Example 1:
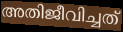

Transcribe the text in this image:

അതിജീവിച്ചത്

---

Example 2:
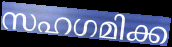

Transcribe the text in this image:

സഹഗമിക്ക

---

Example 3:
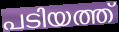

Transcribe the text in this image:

പടിയത്ത്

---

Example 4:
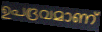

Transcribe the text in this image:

ഉപദ്രവമാണ്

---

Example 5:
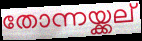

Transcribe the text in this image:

തോന്നയ്ക്കല്